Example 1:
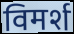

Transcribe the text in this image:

विमर्श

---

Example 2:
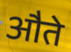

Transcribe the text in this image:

औते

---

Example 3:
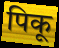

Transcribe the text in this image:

पिकू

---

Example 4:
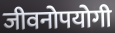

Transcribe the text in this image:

जीवनोपयोगी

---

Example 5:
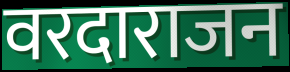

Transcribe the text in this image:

वरदाराजन